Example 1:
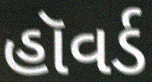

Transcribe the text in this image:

હૉવર્ડ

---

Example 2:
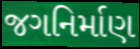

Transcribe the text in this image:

જગનિર્માણ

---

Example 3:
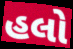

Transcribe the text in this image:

હલો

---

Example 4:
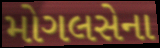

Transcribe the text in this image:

મોગલસેના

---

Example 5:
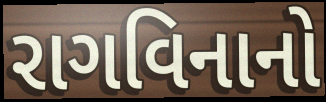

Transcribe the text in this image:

રાગવિનાનો